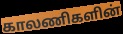
காலணிகளின்